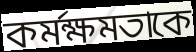
কর্মক্ষমতাকে